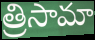
త్రిసామా